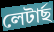
লেটাৰ্ছ